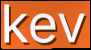
kev